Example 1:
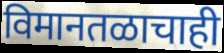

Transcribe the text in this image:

विमानतळाचाही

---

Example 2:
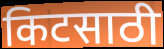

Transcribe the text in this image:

किटसाठी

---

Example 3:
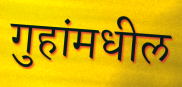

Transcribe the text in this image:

गुहांमधील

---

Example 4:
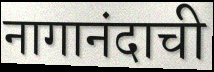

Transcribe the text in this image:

नागानंदाची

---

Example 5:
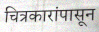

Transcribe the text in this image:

चित्रकारांपासून